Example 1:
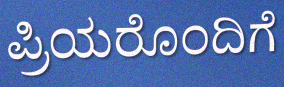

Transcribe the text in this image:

ಪ್ರಿಯರೊಂದಿಗೆ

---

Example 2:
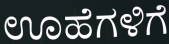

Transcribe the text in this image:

ಊಹೆಗಳಿಗೆ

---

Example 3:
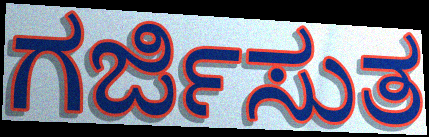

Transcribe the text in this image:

ಗರ್ಜಿಸುತ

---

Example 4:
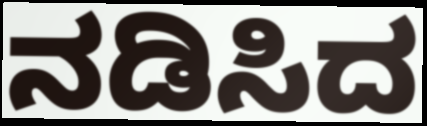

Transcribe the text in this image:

ನಡಿಸಿದ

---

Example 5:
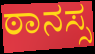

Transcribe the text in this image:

ಠಾನಸ್ಸ